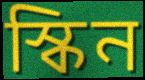
স্কিন